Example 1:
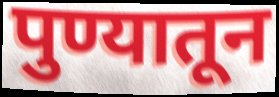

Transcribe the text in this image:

पुण्यातून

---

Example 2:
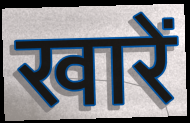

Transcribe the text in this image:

खारें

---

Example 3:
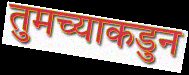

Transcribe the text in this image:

तुमच्याकडुन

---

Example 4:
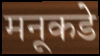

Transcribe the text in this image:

मनूकडे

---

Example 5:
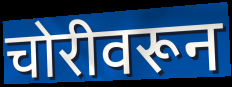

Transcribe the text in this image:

चोरीवरून